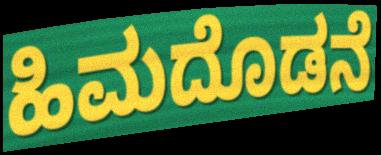
ಹಿಮದೊಡನೆ